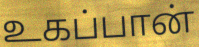
உகப்பான்